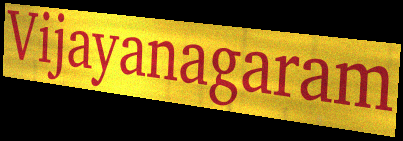
Vijayanagaram